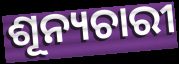
ଶୂନ୍ୟଚାରୀ